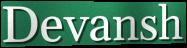
Devansh